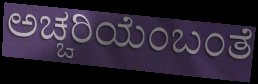
ಅಚ್ಚರಿಯೆಂಬಂತೆ